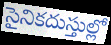
సైనికదుస్తుల్లో